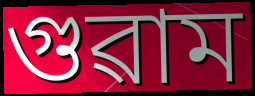
গুৱাম